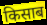
किसाब